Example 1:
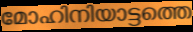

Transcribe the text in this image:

മോഹിനിയാട്ടത്തെ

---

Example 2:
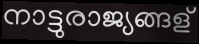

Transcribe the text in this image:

നാട്ടുരാജ്യങ്ങള്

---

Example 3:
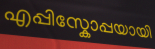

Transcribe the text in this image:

എപ്പിസ്കോപ്പയായി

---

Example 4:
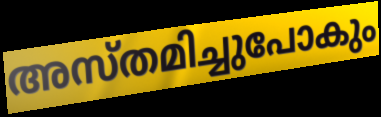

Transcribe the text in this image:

അസ്തമിച്ചുപോകും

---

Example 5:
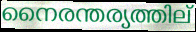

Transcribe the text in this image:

നൈരന്തര്യത്തില്